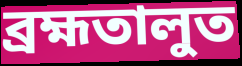
ব্ৰহ্মতালুত